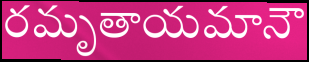
రమృతాయమానౌ